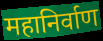
महानिर्वाण